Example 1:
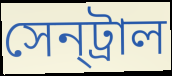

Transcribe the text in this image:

সেন্‌ট্রাল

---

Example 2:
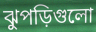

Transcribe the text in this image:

ঝুপড়িগুলো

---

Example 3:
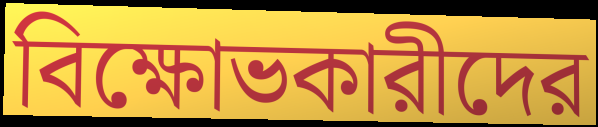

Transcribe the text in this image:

বিক্ষোভকারীদের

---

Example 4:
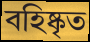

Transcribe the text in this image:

বহিষ্কৃত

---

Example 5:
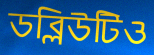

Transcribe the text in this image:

ডব্লিউটিও